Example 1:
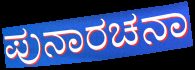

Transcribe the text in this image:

ಪುನಾರಚನಾ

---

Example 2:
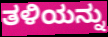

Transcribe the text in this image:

ತಳಿಯನ್ನು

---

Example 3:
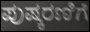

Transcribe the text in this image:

ಪುಷ್ಕರಣಿಗೆ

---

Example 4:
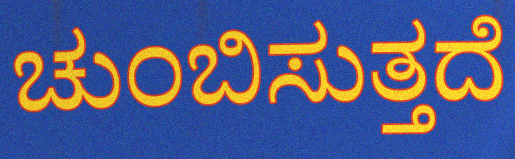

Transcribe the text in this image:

ಚುಂಬಿಸುತ್ತದೆ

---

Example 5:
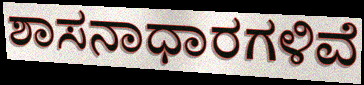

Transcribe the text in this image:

ಶಾಸನಾಧಾರಗಳಿವೆ